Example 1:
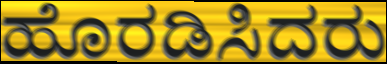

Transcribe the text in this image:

ಹೊರಡಿಸಿದರು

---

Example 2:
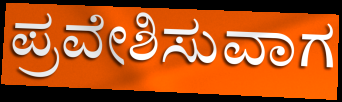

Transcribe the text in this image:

ಪ್ರವೇಶಿಸುವಾಗ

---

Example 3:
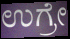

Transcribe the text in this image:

ಉಗ್ರೇ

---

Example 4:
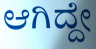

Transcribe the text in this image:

ಆಗಿದ್ದೇ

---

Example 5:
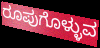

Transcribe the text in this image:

ರೂಪುಗೊಳ್ಳುವ